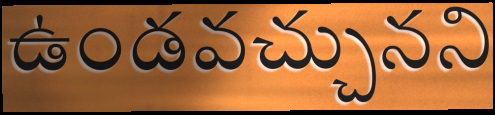
ఉండవచ్చునని